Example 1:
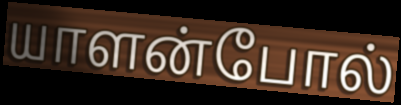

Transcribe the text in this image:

யாளன்போல்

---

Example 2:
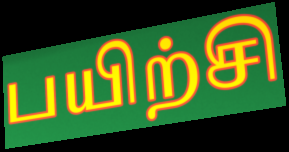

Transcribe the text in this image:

பயிற்சி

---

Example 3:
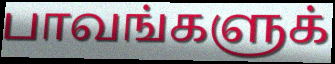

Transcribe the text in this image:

பாவங்களுக்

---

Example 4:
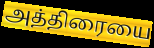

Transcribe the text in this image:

அத்திரையை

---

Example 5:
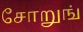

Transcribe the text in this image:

சோறுங்